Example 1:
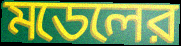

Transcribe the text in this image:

মডেলের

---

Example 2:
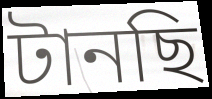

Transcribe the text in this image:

টানছি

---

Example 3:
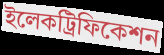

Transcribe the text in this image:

ইলেকট্রিফিকেশন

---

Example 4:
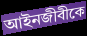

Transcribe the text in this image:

আইনজীবীকে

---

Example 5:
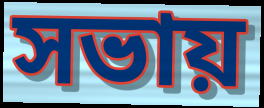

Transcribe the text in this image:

সভায়